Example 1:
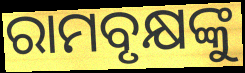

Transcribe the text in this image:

ରାମବୃକ୍ଷଙ୍କୁ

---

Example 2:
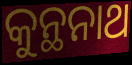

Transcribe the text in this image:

କୁନ୍ଥନାଥ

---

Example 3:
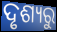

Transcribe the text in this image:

ଦୃଶ୍ୟରୁ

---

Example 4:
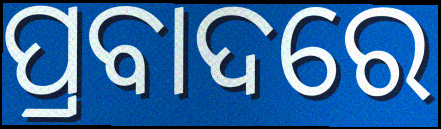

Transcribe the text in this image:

ପ୍ରବାଦରେ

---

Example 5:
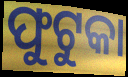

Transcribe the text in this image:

ଫୁଟୁକା